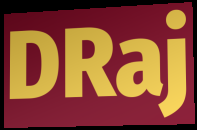
DRaj